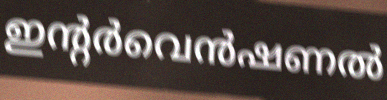
ഇന്റർവെൻഷണൽ